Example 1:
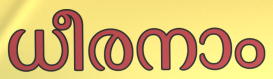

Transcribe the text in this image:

ധീരനാം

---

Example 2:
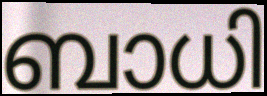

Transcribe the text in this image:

ബാധി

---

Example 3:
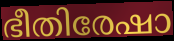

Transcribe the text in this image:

ഭീതിരേഷാ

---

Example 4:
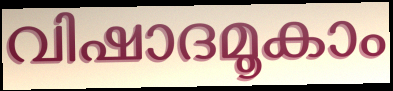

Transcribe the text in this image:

വിഷാദമൂകാം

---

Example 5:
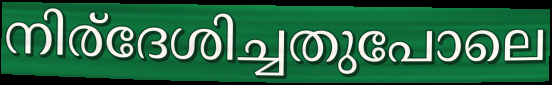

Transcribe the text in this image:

നിര്ദേശിച്ചതുപോലെ